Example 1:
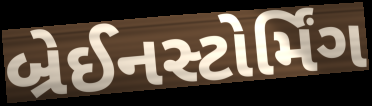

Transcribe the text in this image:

બ્રેઈનસ્ટોર્મિંગ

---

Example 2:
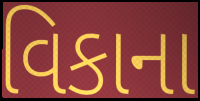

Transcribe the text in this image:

વિકાના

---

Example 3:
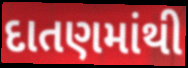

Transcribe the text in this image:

દાતણમાંથી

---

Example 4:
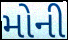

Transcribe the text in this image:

મોની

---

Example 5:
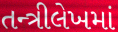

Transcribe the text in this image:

તન્ત્રીલેખમાં